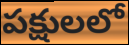
పక్షులలో